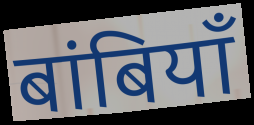
बांबियाँ